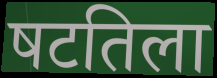
षटतिला